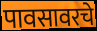
पावसावरचे